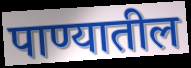
पाण्यातील